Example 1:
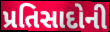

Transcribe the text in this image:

પ્રતિસાદોની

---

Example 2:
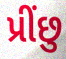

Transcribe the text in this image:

પ્રીંછુ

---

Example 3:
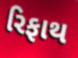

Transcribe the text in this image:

રિફાથ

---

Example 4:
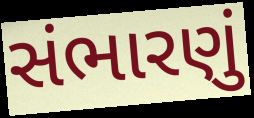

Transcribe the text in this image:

સંભારણું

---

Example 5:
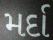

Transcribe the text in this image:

મર્દા